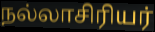
நல்லாசிரியர்